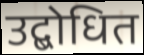
उद्बोधित